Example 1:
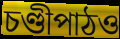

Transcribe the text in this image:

চণ্ডীপাঠও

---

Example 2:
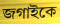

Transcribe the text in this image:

জগাইকে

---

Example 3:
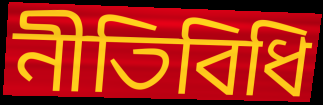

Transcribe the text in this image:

নীতিবিধি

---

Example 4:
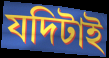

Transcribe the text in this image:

যদিটাই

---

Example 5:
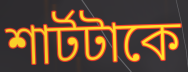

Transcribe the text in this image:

শার্টটাকে